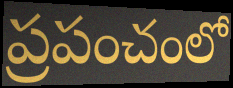
ప్రపంచంలో